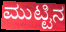
ಮುಟ್ಟಿನ